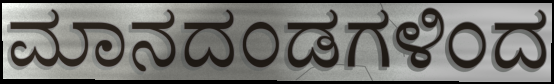
ಮಾನದಂಡಗಳಿಂದ